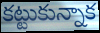
కట్టుకున్నాక